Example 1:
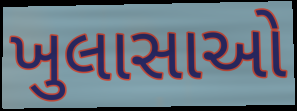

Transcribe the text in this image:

ખુલાસાઓ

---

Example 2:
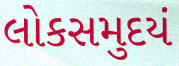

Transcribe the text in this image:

લોકસમુદયં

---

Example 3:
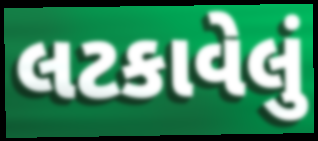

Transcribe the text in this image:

લટકાવેલું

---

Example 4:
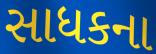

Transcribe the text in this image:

સાધકના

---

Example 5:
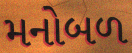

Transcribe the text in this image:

મનોબળ